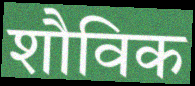
शौविक